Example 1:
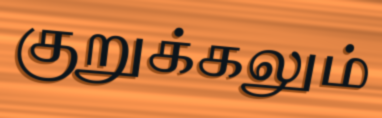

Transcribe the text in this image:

குறுக்கலும்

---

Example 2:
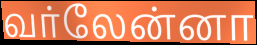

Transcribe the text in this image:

வர்லேன்னா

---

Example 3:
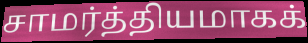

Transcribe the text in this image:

சாமர்த்தியமாகக்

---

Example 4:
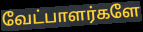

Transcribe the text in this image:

வேட்பாளர்களே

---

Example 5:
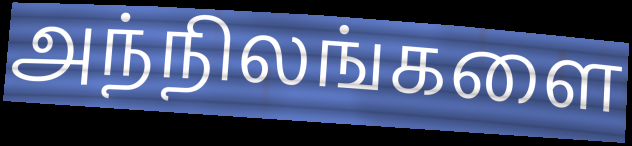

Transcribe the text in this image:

அந்நிலங்களை